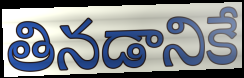
తినడానికే